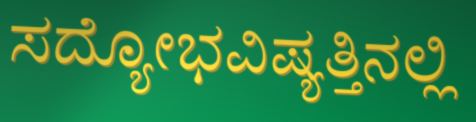
ಸದ್ಯೋಭವಿಷ್ಯತ್ತಿನಲ್ಲಿ